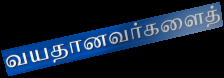
வயதானவர்களைத்